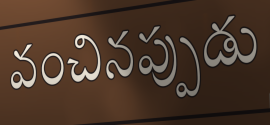
వంచినప్పుడు